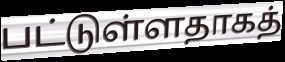
பட்டுள்ளதாகத்